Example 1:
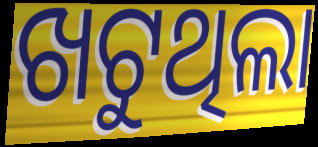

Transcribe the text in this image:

ଖଟୁଥିଲା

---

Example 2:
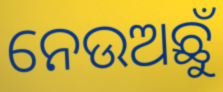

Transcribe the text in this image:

ନେଉଅଛୁଁ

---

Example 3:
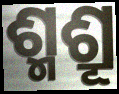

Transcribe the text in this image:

ଶ୍ମଶ୍ରୂ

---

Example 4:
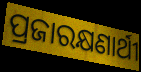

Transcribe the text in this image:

ପ୍ରଜାରକ୍ଷଣାର୍ଥୀ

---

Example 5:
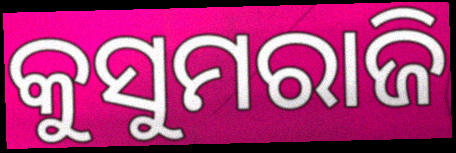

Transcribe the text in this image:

କୁସୁମରାଜି